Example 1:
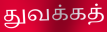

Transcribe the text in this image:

துவக்கத்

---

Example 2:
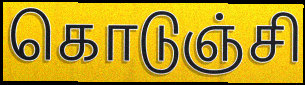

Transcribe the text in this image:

கொடுஞ்சி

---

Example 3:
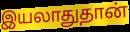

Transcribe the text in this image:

இயலாதுதான்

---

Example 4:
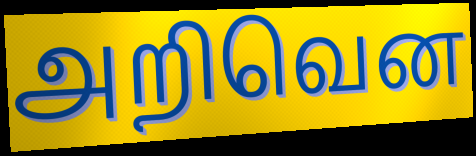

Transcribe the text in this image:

அறிவென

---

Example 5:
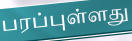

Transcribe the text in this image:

பரப்புள்ளது